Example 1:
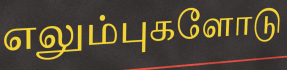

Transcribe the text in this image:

எலும்புகளோடு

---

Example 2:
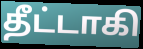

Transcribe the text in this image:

தீட்டாகி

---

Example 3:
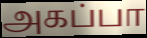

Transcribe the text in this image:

அகப்பா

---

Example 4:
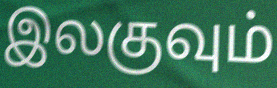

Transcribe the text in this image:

இலகுவும்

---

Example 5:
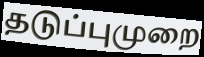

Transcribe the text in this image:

தடுப்புமுறை